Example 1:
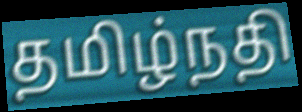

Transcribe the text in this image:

தமிழ்நதி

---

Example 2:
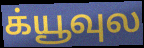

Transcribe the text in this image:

க்யூவுல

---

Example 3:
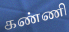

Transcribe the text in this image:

கண்ணி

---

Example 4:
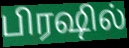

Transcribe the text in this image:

பிரஷில்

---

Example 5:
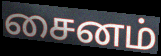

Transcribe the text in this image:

சைனம்